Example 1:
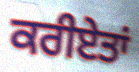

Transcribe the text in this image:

ਕਰੀਏਤਾਂ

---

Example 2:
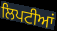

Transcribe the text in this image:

ਲਿਪਟੀਆਂ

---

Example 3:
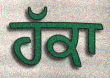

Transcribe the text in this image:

ਹੱਕਾ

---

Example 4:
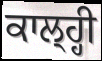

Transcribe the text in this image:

ਕਾਲ੍ਹ੍ਹੀ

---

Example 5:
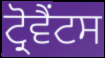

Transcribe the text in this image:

ਟ੍ਰੋਵੈਂਟਸ